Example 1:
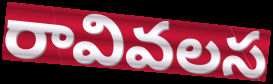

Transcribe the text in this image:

రావివలస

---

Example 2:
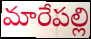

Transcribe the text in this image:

మారేపల్లి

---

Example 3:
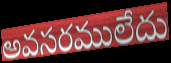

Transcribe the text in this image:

అవసరములేదు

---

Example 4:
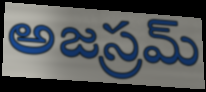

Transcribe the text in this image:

అజస్రమ్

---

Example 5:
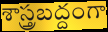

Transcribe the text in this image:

శాస్త్రబద్దంగా